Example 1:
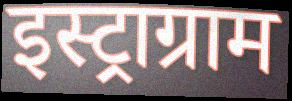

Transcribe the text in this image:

इस्ट्राग्राम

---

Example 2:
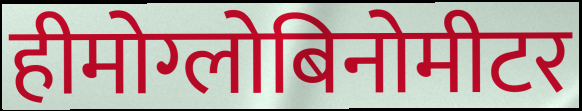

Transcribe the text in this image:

हीमोग्लोबिनोमीटर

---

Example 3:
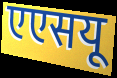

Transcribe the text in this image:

एएसयू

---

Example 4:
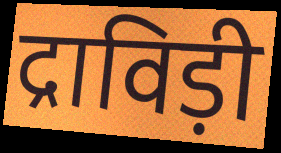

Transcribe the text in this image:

द्राविड़ी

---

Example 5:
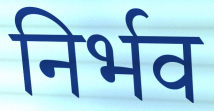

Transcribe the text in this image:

निर्भव